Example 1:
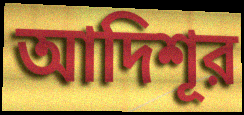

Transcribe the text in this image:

আদিশূর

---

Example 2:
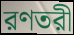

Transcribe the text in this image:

রণতরী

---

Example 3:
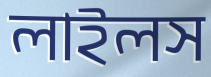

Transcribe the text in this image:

লাইলস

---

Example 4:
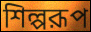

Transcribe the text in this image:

শিল্পরূপ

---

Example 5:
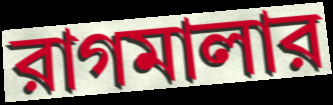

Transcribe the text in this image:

রাগমালার